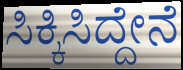
ಸಿಕ್ಕಿಸಿದ್ದೇನೆ